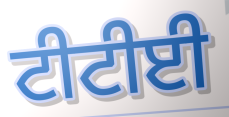
ਟੀਟੀਈ